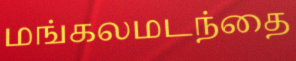
மங்கலமடந்தை